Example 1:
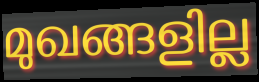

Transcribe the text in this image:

മുഖങ്ങളില്ല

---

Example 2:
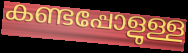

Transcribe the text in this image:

കണ്ടപ്പോളുള്ള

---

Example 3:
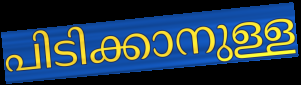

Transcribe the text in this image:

പിടിക്കാനുള്ള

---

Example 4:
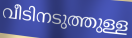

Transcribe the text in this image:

വീടിനടുത്തുള്ള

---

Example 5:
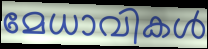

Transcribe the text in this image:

മേധാവികൾ